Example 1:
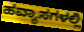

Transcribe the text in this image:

ಹವ್ಯಾಸಗಳಲ್ಲಿ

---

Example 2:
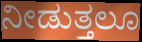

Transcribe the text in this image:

ನೀಡುತ್ತಲೂ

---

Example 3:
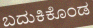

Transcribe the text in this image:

ಬದುಕಿಕೊಂಡ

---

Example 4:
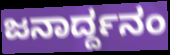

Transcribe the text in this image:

ಜನಾರ್ದ್ದನಂ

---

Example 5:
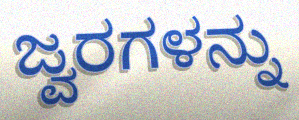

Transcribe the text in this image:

ಜ್ವರಗಳನ್ನು